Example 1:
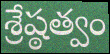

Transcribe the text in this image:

శ్రేష్ఠత్వం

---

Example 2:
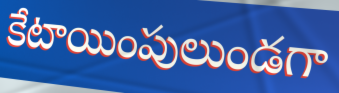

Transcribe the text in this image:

కేటాయింపులుండగా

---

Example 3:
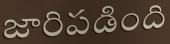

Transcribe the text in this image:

జారిపడింది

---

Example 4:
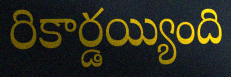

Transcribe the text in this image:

రికార్డయ్యింది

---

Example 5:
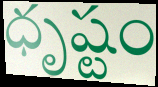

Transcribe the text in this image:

ధృష్టం